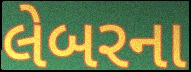
લેબરના